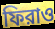
ফিরাও